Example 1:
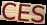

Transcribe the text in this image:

CES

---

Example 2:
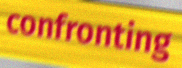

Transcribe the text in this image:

confronting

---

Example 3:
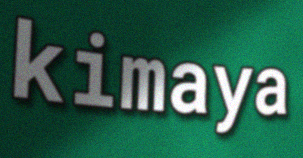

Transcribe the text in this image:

kimaya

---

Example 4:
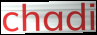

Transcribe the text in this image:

chadi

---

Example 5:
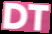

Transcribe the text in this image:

DT